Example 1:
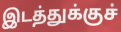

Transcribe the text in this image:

இடத்துக்குச்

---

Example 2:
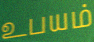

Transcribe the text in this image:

உபயம்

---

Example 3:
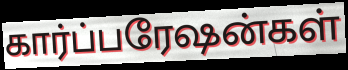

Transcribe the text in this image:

கார்ப்பரேஷன்கள்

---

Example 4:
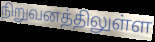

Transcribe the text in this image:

நிறுவனத்திலுள்ள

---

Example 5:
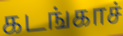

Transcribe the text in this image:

கடங்காச்